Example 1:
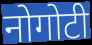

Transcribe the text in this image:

नोगोटी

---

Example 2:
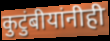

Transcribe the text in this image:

कुटुंबीयांनीही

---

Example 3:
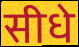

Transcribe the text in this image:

सीधे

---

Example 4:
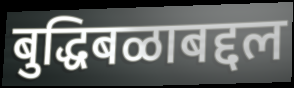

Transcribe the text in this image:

बुद्धिबळाबद्दल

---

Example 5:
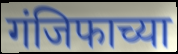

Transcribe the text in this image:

गंजिफाच्या